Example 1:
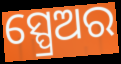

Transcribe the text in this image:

ସ୍ପ୍ରେଅର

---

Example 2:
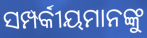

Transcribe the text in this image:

ସମ୍ପର୍କୀୟମାନଙ୍କୁ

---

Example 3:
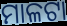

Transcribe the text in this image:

ମାଳଟା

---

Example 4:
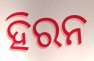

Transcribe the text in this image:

ହିରନ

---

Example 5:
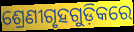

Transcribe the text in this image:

ଶ୍ରେଣୀଗୃହଗୁଡ଼ିକରେ